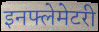
इनफ्लेमेटरी